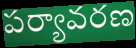
పర్యావరణ